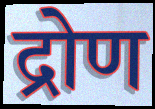
द्रोण